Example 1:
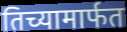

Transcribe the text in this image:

तिच्यामार्फत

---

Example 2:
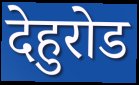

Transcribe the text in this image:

देहुरोड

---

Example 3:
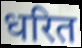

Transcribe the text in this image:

धरित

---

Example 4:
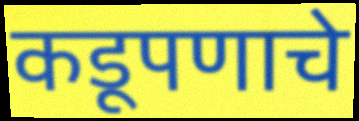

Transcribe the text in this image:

कडूपणाचे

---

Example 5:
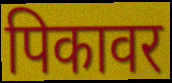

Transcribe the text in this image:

पिकावर